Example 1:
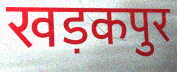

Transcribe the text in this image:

खड़कपुर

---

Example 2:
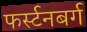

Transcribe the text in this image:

फर्स्टनबर्ग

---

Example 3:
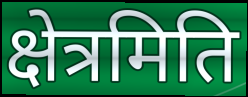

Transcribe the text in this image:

क्षेत्रमिति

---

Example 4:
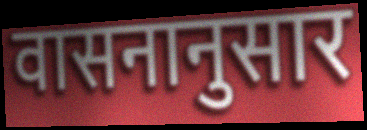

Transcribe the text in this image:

वासनानुसार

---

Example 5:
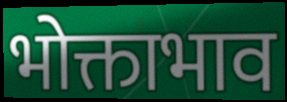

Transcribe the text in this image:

भोक्ताभाव